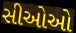
સીઓઓ